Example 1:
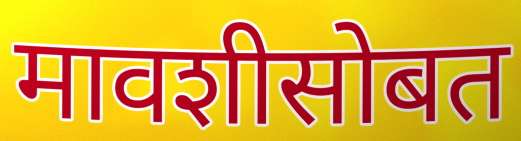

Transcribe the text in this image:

मावशीसोबत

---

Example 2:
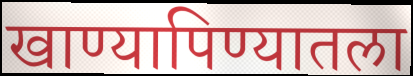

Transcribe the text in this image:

खाण्यापिण्यातला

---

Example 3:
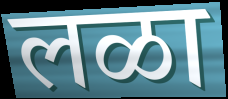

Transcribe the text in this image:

लळा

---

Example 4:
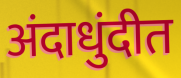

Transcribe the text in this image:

अंदाधुंदीत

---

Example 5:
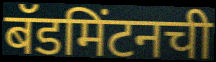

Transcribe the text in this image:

बॅडमिंटनची